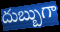
దుబ్బుగా